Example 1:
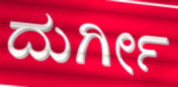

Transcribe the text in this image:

ದುರ್ಗೀ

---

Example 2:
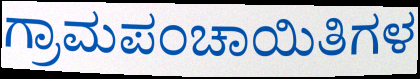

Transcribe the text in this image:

ಗ್ರಾಮಪಂಚಾಯಿತಿಗಳ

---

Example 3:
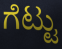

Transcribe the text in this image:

ಗೆಟ್ಟು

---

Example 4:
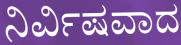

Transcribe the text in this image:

ನಿರ್ವಿಷವಾದ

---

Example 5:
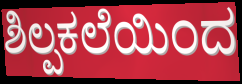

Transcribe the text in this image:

ಶಿಲ್ಪಕಲೆಯಿಂದ